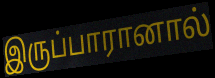
இருப்பாரானால்